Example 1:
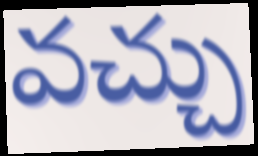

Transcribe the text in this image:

వచ్చు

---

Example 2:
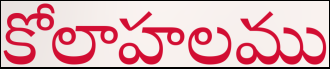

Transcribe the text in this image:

కోలాహలము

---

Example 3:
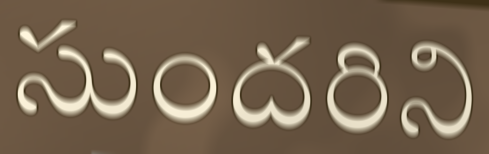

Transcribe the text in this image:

సుందరిని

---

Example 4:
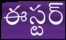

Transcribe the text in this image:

ఈస్టర్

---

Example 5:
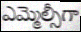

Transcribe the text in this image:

ఎమ్మెల్సీగా